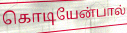
கொடியேன்பால்